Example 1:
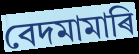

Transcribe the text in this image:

বেদমামাৰি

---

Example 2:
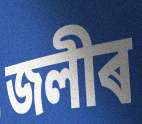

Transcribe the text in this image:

জলীৰ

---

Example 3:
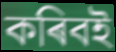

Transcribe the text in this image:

কৰিবই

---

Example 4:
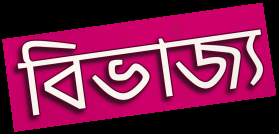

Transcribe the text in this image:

বিভাজ্য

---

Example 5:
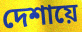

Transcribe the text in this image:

দেশায়ে